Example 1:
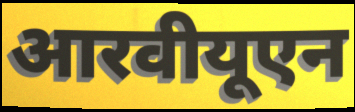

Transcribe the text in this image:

आरवीयूएन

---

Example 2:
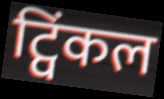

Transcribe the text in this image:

ट्विंकल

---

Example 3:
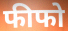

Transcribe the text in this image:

फीफो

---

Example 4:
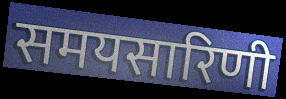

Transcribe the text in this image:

समयसारिणी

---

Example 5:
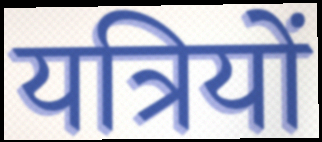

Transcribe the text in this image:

यत्रियों